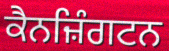
ਕੈਨਜ਼ਿੰਗਟਨ